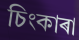
চিংকাৰা